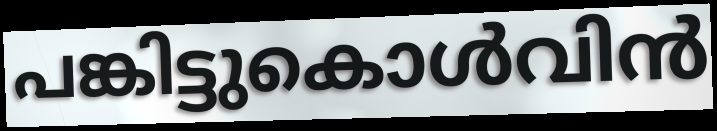
പങ്കിട്ടുകൊൾവിൻ